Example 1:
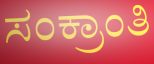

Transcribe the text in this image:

ಸಂಕ್ರಾಂತಿ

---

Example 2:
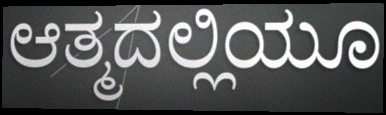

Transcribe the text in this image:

ಆತ್ಮದಲ್ಲಿಯೂ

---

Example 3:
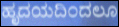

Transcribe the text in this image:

ಹೃದಯದಿಂದಲೂ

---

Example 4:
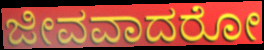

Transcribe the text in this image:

ಜೀವವಾದರೋ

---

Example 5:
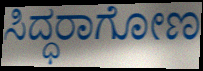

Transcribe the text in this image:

ಸಿದ್ಧರಾಗೋಣ